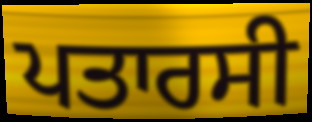
ਪਤਾਰਸੀ